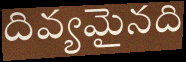
దివ్యమైనది